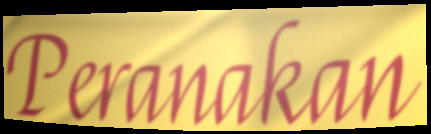
Peranakan